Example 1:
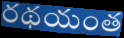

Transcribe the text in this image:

రథయంత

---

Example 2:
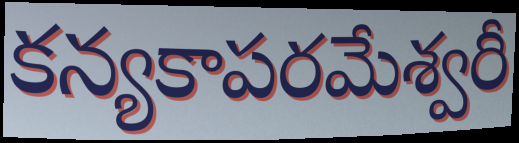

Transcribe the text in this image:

కన్యకాపరమేశ్వరీ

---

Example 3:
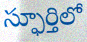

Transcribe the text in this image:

స్ఫూర్తిలో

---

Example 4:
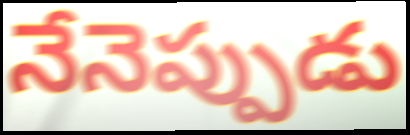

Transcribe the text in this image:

నేనెప్పుడు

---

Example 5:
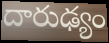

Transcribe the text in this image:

దారుఢ్యం